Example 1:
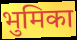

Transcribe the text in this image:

भुमिका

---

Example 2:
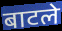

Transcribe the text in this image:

बाटले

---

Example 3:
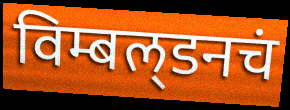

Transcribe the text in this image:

विम्बल्डनचं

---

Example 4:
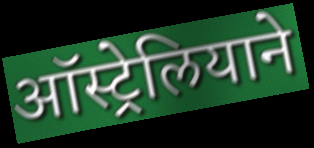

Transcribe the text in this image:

ऑस्ट्रेलियाने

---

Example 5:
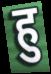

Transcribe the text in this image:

हु